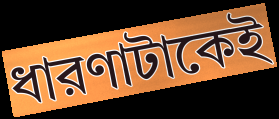
ধারণাটাকেই